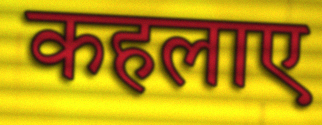
कहलाए